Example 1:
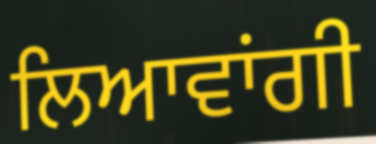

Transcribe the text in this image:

ਲਿਆਵਾਂਗੀ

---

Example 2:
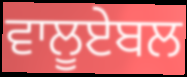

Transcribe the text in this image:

ਵਾਲੂਏਬਲ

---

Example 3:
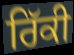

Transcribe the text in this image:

ਰਿੱਕੀ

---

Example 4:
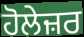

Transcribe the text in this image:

ਹੋਲੇਜ਼ਰ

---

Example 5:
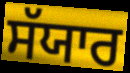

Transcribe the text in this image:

ਸੱਯਾਰ